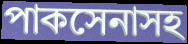
পাকসেনাসহ